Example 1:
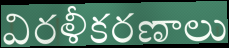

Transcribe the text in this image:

విరళీకరణాలు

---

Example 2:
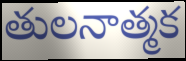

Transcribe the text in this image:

తులనాత్మక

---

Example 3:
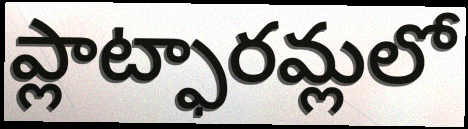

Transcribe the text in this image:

ప్లాట్ఫారమ్లలో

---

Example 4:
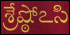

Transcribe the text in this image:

శ్రేష్ఠోఽసి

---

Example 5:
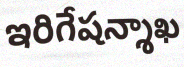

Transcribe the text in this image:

ఇరిగేషన్శాఖ